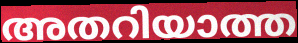
അതറിയാത്ത